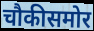
चौकीसमोर